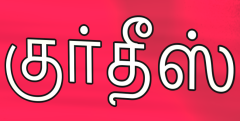
குர்தீஸ்